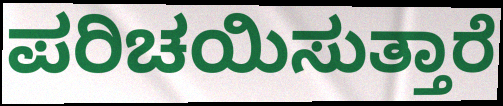
ಪರಿಚಯಿಸುತ್ತಾರೆ